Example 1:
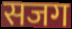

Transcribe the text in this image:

सजग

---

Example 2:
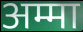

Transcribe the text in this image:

अम्मा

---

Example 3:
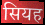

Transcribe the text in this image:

सियह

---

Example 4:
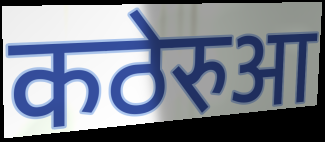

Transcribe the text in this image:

कठेरुआ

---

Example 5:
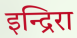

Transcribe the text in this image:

इन्द्रिरा